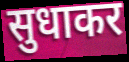
सुधाकर